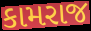
કામરાજ